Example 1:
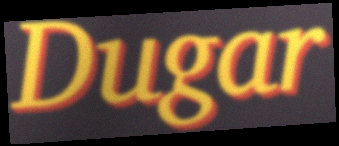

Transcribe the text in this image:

Dugar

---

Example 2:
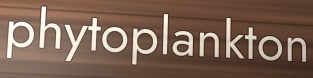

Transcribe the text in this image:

phytoplankton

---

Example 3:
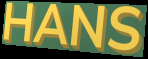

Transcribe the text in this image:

HANS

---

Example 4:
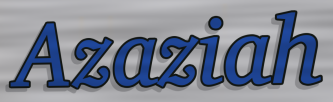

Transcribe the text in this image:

Azaziah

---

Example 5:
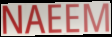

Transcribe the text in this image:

NAEEM